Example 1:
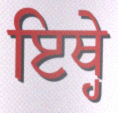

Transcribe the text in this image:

ਇਥ੍ਹੇ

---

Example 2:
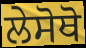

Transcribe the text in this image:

ਲੇਸੋਥੋ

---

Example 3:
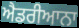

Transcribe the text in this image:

ਐਡਰੀਆਨਾ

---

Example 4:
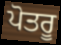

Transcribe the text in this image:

ਪੋਤਰੂ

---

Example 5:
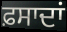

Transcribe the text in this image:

ਫ਼ਸਾਦਾਂ